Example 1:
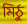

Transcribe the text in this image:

মিঠু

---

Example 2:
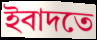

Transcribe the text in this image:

ইবাদতে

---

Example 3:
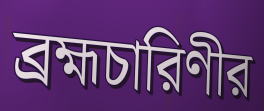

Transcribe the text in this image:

ব্রহ্মচারিণীর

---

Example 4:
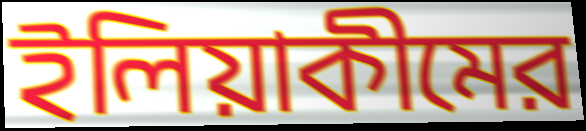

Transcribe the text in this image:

ইলিয়াকীমের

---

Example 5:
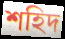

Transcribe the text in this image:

শহিদ